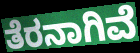
ತೆರನಾಗಿವೆ